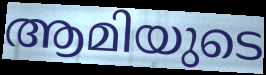
ആമിയുടെ